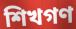
শিখগণ